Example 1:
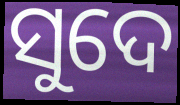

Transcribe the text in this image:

ସୁଦେ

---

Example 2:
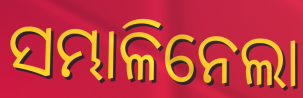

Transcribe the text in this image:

ସମ୍ଭାଳିନେଲା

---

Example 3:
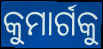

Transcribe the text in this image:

କୁମାର୍ଗକୁ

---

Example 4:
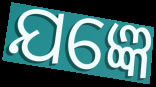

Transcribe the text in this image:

ଯଜ୍ଞେ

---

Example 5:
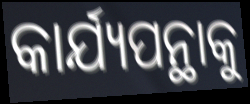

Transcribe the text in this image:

କାର୍ଯ୍ୟପନ୍ଥାକୁ